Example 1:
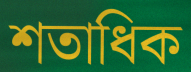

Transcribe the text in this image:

শতাধিক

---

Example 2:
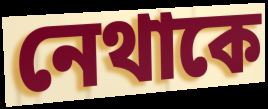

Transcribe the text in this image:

নেথাকে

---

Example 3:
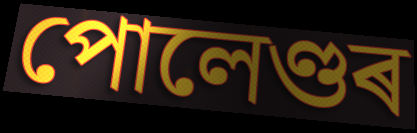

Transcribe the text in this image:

পোলেণ্ডৰ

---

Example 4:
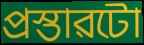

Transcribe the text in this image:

প্ৰস্তাৱটো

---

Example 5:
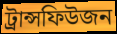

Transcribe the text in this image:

ট্ৰান্সফিউজন